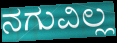
ನಗುವಿಲ್ಲ